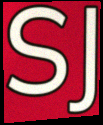
SJ